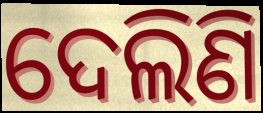
ଦେଲିଣି